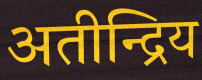
अतीन्द्रिय